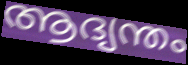
ആദ്യന്തം